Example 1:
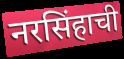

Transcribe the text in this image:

नरसिंहाची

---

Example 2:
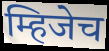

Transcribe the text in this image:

म्हिजेच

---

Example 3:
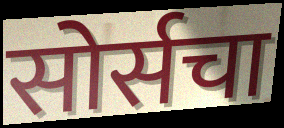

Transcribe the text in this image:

सोर्सचा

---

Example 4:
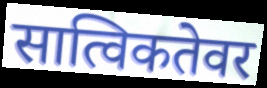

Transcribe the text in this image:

सात्विकतेवर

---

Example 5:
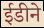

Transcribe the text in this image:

ईडीने